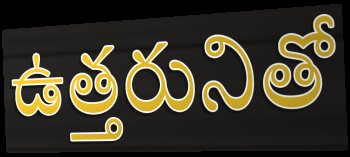
ఉత్తరునితో